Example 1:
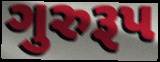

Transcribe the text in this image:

ગુરુરૂપ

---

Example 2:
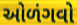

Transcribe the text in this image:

ઓળંગવો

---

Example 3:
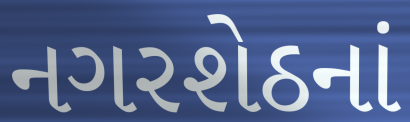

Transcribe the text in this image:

નગરશેઠનાં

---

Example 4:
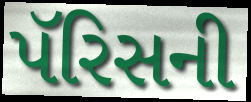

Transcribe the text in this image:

પૅરિસની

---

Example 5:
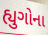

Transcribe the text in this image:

હ્યુગોના